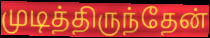
முடித்திருந்தேன்